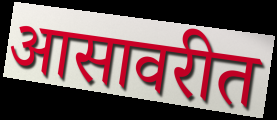
आसावरीत